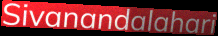
Sivanandalahari